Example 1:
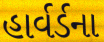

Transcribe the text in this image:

હાર્વર્ડના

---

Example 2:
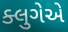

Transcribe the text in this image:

ક્લુગેએ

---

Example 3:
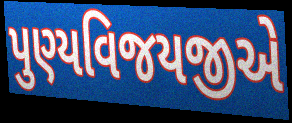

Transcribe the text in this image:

પુણ્યવિજયજીએ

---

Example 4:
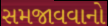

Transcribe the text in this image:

સમજાવવાનો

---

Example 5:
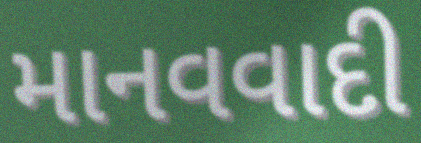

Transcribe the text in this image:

માનવવાદી